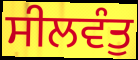
ਸੀਲਵੰਤੁ